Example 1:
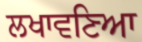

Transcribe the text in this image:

ਲਖਾਵਣਿਆ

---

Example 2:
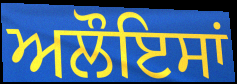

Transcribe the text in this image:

ਅਲੌਇਸਾਂ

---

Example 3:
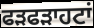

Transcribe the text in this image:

ਫੜਫੜਾਹਟਾਂ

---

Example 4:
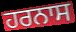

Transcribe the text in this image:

ਹਰਨਾਸ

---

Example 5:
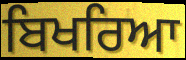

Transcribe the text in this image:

ਬਿਖਰਿਆ